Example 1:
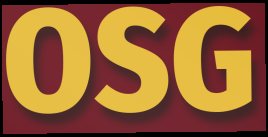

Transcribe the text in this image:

OSG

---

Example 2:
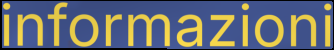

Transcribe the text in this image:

informazioni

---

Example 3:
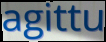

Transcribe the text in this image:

agittu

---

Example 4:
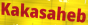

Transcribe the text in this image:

Kakasaheb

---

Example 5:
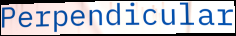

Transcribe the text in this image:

Perpendicular